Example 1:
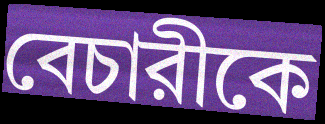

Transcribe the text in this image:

বেচারীকে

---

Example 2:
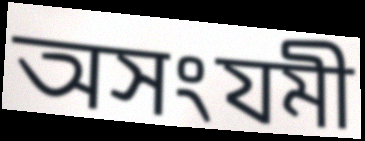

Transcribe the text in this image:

অসংযমী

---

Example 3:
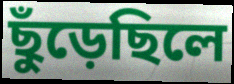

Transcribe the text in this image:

ছুঁড়েছিলে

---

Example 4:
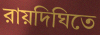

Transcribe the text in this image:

রায়দিঘিতে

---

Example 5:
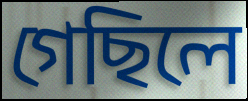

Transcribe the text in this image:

গেছিলে